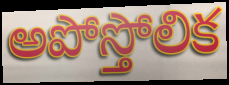
అపోస్తోలిక